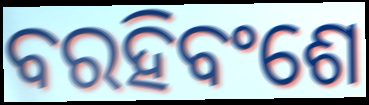
ବରହିବଂଶେ